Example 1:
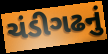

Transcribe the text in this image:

ચંડીગઢનું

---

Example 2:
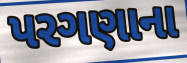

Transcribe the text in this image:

પરગણાના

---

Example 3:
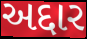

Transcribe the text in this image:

અદ્દાર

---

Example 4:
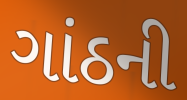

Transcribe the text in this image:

ગાંઠની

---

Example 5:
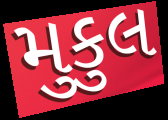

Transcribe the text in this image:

મુકુલ